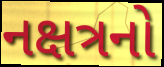
નક્ષત્રનો